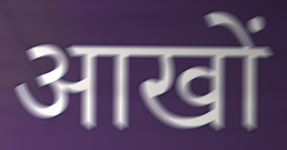
आखों